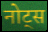
नोट्‌स